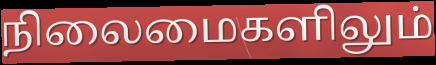
நிலைமைகளிலும்